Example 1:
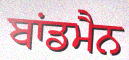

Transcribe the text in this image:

ਬਾਂਡਮੈਨ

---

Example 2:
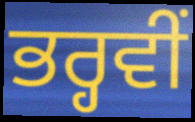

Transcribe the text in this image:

ਭਰ੍ਹਵੀਂ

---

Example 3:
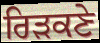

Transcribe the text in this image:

ਰਿੜਕਣੇ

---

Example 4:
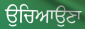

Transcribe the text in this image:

ਉਚਿਆਉਣਾ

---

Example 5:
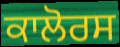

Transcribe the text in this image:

ਕਾਲੋਰਸ